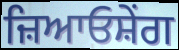
ਜ਼ਿਆਓਸ਼ੇਂਗ